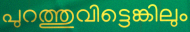
പുറത്തുവിട്ടെങ്കിലും